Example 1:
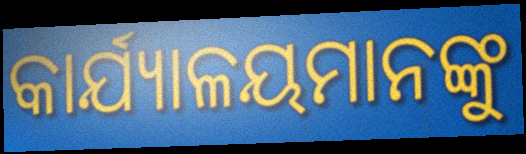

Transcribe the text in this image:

କାର୍ଯ୍ୟାଳୟମାନଙ୍କୁ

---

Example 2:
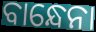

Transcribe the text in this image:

ବାନ୍ଧେନା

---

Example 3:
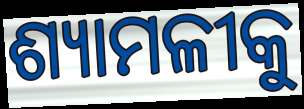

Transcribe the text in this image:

ଶ୍ୟାମଳୀକୁ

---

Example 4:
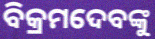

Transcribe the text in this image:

ବିକ୍ରମଦେବଙ୍କୁ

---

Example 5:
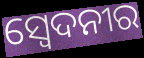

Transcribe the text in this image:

ସ୍ୱେଦନୀର